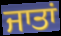
ਜਾਤਾਂ